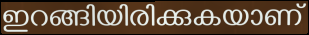
ഇറങ്ങിയിരിക്കുകയാണ്